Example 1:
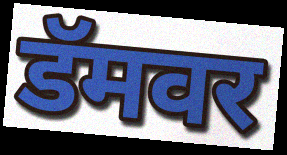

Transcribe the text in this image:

डॅमवर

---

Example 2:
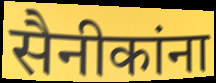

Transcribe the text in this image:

सैनीकांना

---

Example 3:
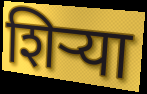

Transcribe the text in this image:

शिर्‍या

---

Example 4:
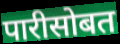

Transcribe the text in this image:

पारीसोबत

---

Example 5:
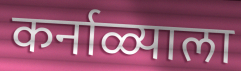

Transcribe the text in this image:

कर्नाळ्याला